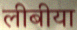
लीबीया